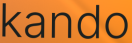
kando